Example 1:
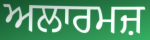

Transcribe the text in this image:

ਅਲਾਰਮਜ਼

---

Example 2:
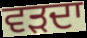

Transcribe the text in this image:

ਵੜਦਾ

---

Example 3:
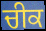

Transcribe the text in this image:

ਚੀਕ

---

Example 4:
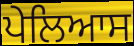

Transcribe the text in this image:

ਪੇਲਿਆਸ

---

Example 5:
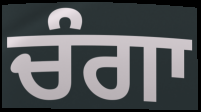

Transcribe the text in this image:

ਚੰਗਾ